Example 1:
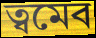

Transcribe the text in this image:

ত্বমেব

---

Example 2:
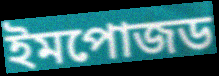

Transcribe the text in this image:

ইমপোজড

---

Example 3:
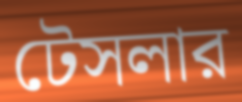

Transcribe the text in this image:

টেসলার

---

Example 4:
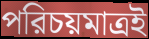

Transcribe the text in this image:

পরিচয়মাত্রই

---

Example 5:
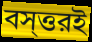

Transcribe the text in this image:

বস্ত্তরই